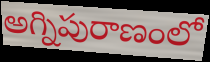
అగ్నిపురాణంలో